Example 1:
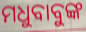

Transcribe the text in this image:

ମଧୁବାବୁଙ୍କ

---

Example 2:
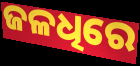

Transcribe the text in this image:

ଜଳଧିରେ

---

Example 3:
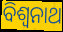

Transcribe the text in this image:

ବିଶ୍ଵନାଥ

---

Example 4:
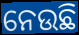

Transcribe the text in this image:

ନେଉଛି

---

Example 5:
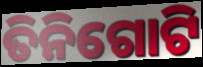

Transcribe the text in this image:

ତିନିଗୋଟି